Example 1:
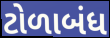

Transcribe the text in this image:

ટોળાબંધ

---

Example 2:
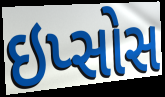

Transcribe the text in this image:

ઇપ્સોસ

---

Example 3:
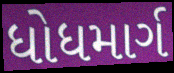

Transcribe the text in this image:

ધોધમાર્ગ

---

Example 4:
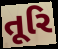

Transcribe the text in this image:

તૂરિ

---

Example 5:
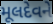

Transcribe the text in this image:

મૂલદેવને